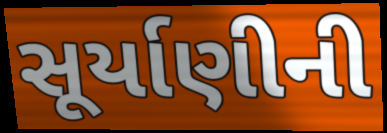
સૂર્યાણીની